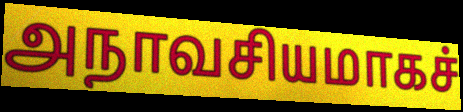
அநாவசியமாகச்